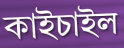
কাইচাইল